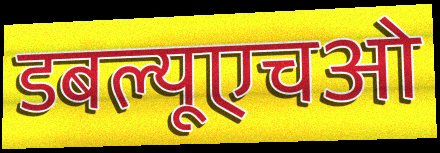
डबल्यूएचओ